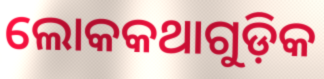
ଲୋକକଥାଗୁଡ଼ିକ